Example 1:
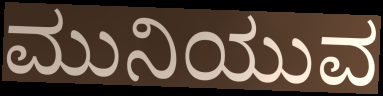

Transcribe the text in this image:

ಮುನಿಯುವ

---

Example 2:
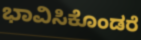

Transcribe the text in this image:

ಭಾವಿಸಿಕೊಂಡರೆ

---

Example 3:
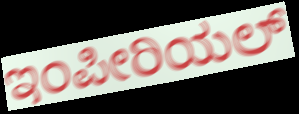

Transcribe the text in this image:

ಇಂಪೀರಿಯಲ್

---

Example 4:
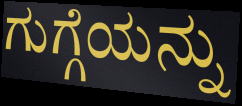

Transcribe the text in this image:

ಗುಗ್ಗೆಯನ್ನು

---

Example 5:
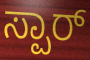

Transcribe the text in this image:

ಸ್ಪಾರ್